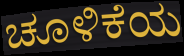
ಚೂಳಿಕೆಯ